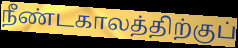
நீண்டகாலத்திற்குப்